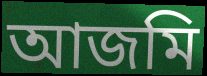
আজমি